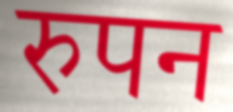
रुपन